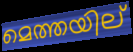
മെത്തയില്